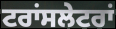
ਟਰਾਂਸਲੇਟਰਾਂ